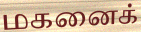
மகனைக்